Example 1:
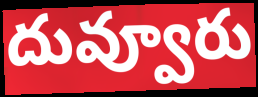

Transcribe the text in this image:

దువ్వూరు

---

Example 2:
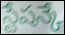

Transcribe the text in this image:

స్టేషన్కే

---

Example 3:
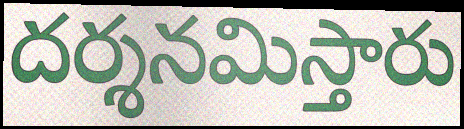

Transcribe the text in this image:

దర్శనమిస్తారు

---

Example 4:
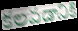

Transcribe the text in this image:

కలవడానికి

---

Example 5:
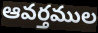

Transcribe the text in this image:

ఆవర్తముల